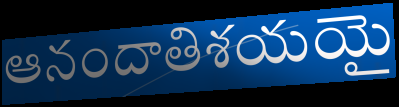
ఆనందాతిశయయై